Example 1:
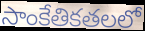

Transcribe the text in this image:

సాంకేతికతలలో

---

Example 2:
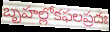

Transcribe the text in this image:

బృహల్లోకఫలప్రదః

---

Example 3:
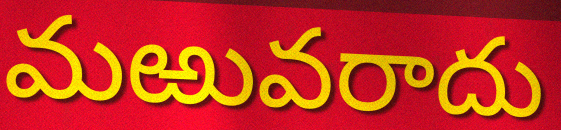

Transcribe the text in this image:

మఱువరాదు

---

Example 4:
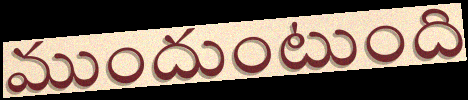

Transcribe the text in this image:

ముందుంటుంది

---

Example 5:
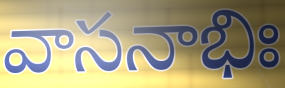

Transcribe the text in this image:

వాసనాభిః